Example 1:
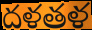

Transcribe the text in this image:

దళతళ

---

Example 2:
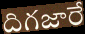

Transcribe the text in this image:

దిగజారే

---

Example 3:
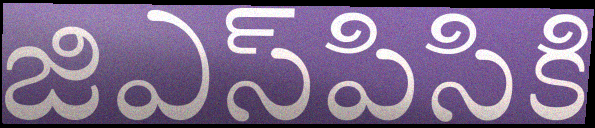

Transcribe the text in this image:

జిఎస్‌పిసికి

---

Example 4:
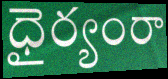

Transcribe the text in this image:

ధైర్యంరా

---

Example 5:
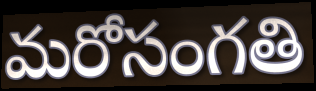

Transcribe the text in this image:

మరోసంగతి